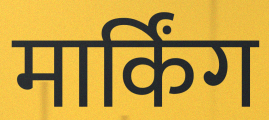
मार्किंग